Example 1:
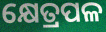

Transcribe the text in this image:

କ୍ଷେତ୍ରପଳ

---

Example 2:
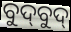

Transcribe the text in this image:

ବୁଦ୍‍ବୁଦ୍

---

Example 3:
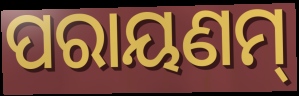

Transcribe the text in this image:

ପରାୟଣମ୍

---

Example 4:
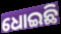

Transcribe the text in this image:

ଧୋଇଛି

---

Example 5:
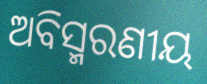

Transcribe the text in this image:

ଅବିସ୍ମରଣୀୟ